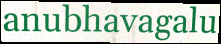
anubhavagalu